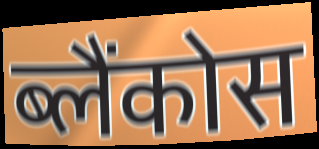
ब्लैंकोस